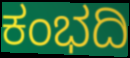
ಕಂಭದಿ